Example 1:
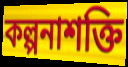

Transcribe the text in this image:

কল্পনাশক্তি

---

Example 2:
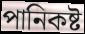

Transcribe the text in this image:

পানিকষ্ট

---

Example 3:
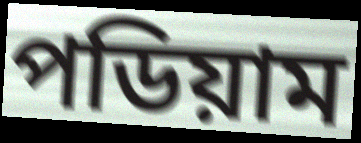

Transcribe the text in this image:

পডিয়াম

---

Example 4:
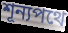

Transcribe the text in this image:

শূন্যপথে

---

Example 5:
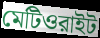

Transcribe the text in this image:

মেটিওরাইট